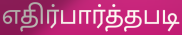
எதிர்பார்த்தபடி